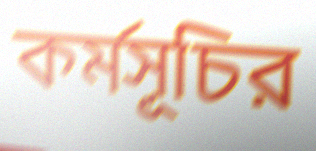
কর্মসূচির